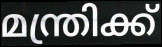
മന്ത്രിക്ക്